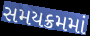
સમયક્રમમાં